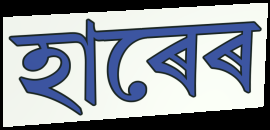
হাৰেৰ